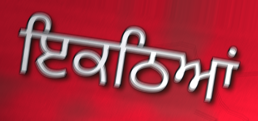
ਇਕਠਿਆਂ